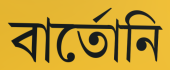
বার্তোনি